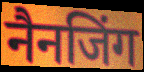
नैनजिंग